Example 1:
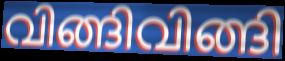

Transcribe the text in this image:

വിങ്ങിവിങ്ങി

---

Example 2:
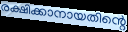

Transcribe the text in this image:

രക്ഷിക്കാനായതിന്റെ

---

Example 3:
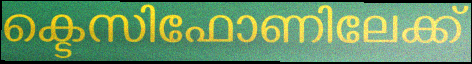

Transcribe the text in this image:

ക്ടെസിഫോണിലേക്ക്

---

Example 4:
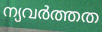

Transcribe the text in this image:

ന്യവർത്തത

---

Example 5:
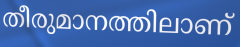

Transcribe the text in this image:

തീരുമാനത്തിലാണ്